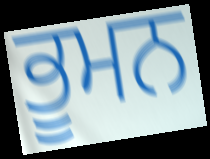
ਭੂਮਨ